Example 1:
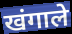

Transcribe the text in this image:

खंगाले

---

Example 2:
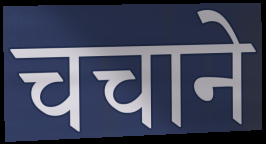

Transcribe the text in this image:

चचाने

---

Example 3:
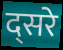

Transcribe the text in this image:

द्सरे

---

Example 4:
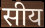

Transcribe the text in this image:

सीय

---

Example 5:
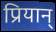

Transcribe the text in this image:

प्रियान्